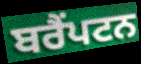
ਬਰੈੰਪਟਨ